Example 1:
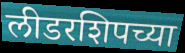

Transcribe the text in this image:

लीडरशिपच्या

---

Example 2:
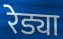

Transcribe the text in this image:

रेड्या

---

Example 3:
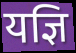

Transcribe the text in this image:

यज्ञि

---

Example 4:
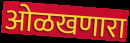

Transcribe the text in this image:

ओळखणारा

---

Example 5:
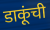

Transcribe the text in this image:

डाकूंची